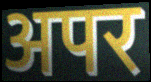
अपर